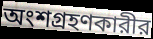
অংশগ্রহণকারীর